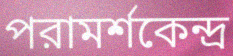
পরামর্শকেন্দ্র